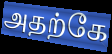
அதற்கே